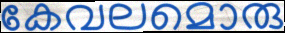
കേവലമൊരു